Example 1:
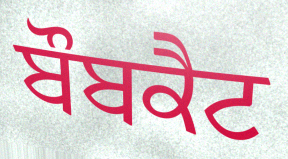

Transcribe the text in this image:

ਬੌਬਕੈਟ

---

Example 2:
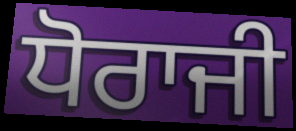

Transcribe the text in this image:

ਧੋਰਾਜੀ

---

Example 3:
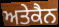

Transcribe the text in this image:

ਅਤੇਕੈਨ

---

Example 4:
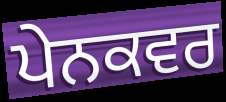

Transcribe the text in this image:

ਪੇਨਕਵਰ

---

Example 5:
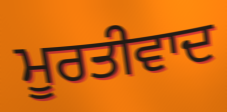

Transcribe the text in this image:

ਮੂਰਤੀਵਾਦ